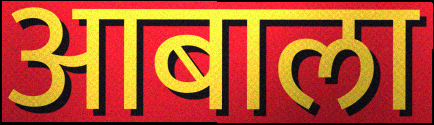
आबाला